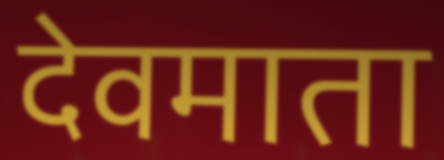
देवमाता